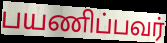
பயணிப்பவர்